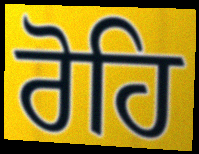
ਰੋਹਿ